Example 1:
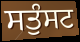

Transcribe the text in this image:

ਸਤੁੰਸਟ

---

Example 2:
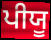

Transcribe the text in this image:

ਪੀਯੂ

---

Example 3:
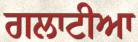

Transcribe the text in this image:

ਗਲਾਟੀਆ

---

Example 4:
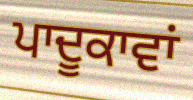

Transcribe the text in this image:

ਪਾਦੂਕਾਵਾਂ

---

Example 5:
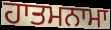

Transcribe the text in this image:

ਹਾਤਮਨਾਮਾ